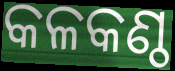
କଳକଣ୍ଠ